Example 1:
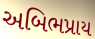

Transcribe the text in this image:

અબિભપ્રાય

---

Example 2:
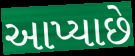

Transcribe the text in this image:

આપ્યાછે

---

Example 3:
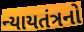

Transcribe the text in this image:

ન્યાયતંત્રનો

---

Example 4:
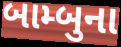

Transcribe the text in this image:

બામ્બુના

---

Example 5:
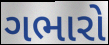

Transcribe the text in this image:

ગભારો